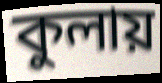
কুলায়